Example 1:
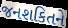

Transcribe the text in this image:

જનશકિતને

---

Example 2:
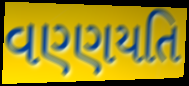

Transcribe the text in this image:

વણ્ણયતિ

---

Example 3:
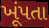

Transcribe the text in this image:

ખૂંપતા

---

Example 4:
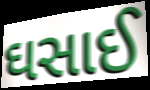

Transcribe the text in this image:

ઘસાઈ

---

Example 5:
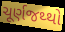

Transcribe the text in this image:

ચૂર્ણજથ્થો